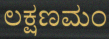
ಲಕ್ಷಣಮಂ